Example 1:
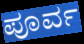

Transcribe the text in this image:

ಪೂರ್ವ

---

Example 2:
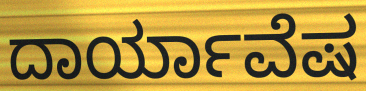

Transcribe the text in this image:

ದಾರ್ಯಾವೆಷ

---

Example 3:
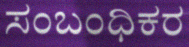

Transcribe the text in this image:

ಸಂಬಂಧಿಕರ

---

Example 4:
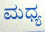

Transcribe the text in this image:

ಮಧ್ಯ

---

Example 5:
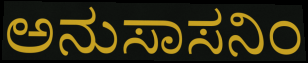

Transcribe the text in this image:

ಅನುಸಾಸನಿಂ